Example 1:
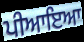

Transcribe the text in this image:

ਪੀਆਇਆ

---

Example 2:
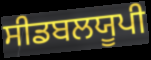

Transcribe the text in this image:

ਸੀਡਬਲਯੂਪੀ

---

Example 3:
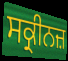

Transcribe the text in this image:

ਸਕ੍ਰੀਨਜ਼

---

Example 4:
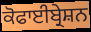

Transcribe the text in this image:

ਕੋਫਾਈਬ੍ਰੇਸ਼ਨ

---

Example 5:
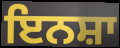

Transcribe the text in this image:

ਇਨਸ਼ਾ